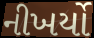
નીખર્યો